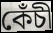
কেঁচী